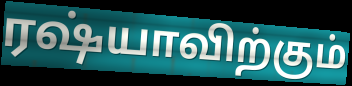
ரஷ்யாவிற்கும்